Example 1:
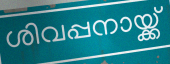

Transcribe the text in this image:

ശിവപ്പനായ്ക്ക്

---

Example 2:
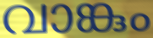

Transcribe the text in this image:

വാങ്കും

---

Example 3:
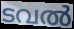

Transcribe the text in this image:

ടവൽ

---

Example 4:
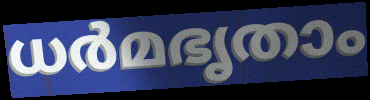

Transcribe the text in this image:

ധർമഭൃതാം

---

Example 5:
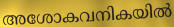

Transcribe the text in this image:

അശോകവനികയിൽ